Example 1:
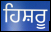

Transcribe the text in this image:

ਹਿਸ਼ਰੂ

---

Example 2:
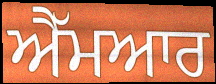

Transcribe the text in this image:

ਐੱਮਆਰ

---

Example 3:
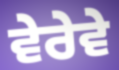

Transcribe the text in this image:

ਵੇਰੇਵੇ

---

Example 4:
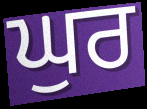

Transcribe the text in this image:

ਘੁਰ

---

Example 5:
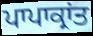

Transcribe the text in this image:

ਪਾਪਾਕ੍ਰਾਂਤ